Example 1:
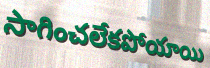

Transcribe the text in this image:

సాగించలేకపోయాయి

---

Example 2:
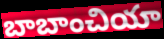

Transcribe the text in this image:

బాబాంచియా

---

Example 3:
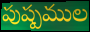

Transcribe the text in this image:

పుష్పముల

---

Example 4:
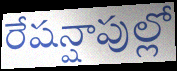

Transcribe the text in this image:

రేషన్షాపుల్లో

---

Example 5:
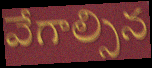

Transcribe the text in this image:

వేగాల్సిన